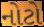
નોટો